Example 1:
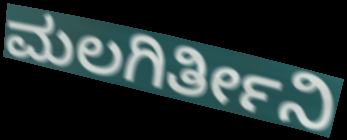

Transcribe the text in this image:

ಮಲಗಿರ್ತೀನಿ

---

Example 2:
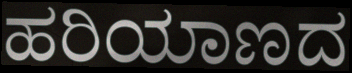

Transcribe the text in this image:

ಹರಿಯಾಣದ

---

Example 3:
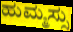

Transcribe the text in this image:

ಹುಮ್ಮಸ್ಸು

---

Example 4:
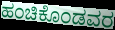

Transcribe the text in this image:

ಹಂಚಿಕೊಂಡವರ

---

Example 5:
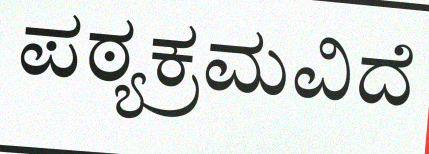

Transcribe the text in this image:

ಪಠ್ಯಕ್ರಮವಿದೆ